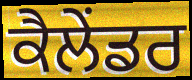
ਕੈਲੇਂਡਰ